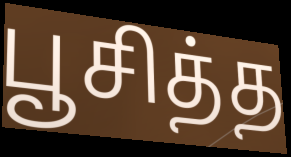
பூசித்த